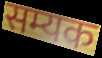
सम्‍यक